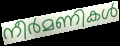
നീർമണികൾ